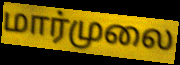
மார்முலை